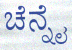
ಚೆನ್ನೈ